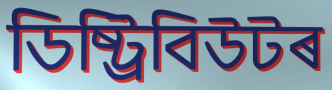
ডিষ্ট্ৰিবিউটৰ